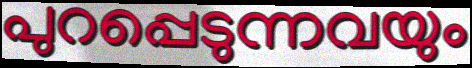
പുറപ്പെടുന്നവയും